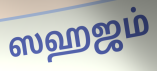
ஸஹஜம்